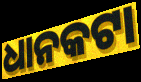
ଧାନକଟା